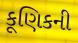
કૂણિકની